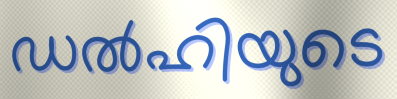
ഡൽഹിയുടെ